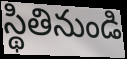
స్థితినుండి